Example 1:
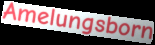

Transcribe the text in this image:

Amelungsborn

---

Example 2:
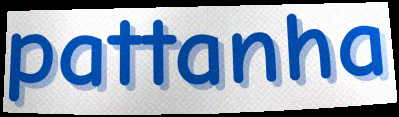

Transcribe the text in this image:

pattanha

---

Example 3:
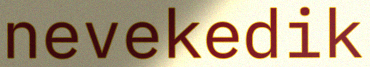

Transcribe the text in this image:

nevekedik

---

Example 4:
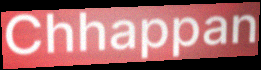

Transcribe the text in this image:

Chhappan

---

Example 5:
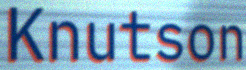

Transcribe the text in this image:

Knutson